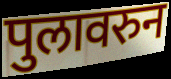
पुलावरुन